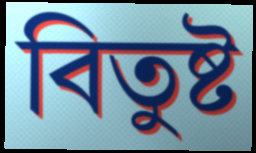
বিতুষ্ট